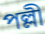
পল্লী